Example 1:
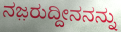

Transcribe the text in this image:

ನಜ಼ರುದ್ದೀನನನ್ನು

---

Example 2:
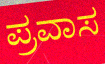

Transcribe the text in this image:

ಪ್ರವಾಸ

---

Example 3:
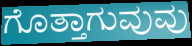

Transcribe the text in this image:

ಗೊತ್ತಾಗುವುವು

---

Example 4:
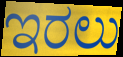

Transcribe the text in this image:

ಇರಲು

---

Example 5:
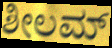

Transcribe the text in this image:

ಶೀಲಮ್